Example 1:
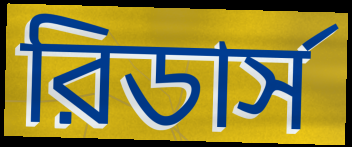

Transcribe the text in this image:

রিডার্স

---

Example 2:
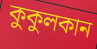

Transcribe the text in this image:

কুকুলকান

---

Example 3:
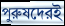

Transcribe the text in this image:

পুরুষদেরই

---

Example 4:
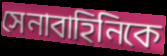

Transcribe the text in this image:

সেনাবাহিনিকে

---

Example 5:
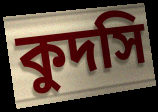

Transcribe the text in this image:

কুদসি